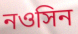
নওসিন